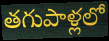
తగుపాళ్లలో